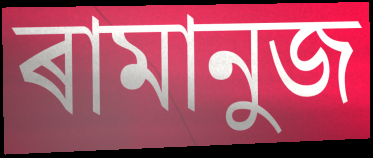
ৰামানুজ